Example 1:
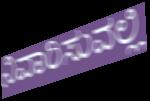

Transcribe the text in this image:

ನಿವಾರಿಸುವಲ್ಲಿ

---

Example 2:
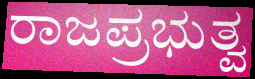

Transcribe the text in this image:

ರಾಜಪ್ರಭುತ್ವ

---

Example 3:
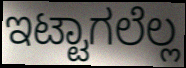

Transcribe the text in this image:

ಇಟ್ಟಾಗಲೆಲ್ಲ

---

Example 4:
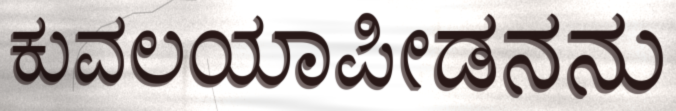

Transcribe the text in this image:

ಕುವಲಯಾಪೀಡನನು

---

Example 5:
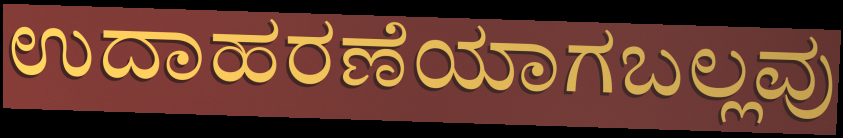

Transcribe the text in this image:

ಉದಾಹರಣೆಯಾಗಬಲ್ಲವು